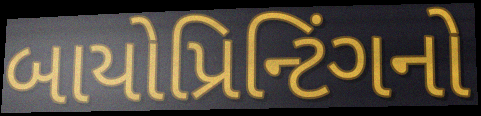
બાયોપ્રિન્ટિંગનો